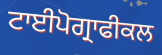
ਟਾਈਪੋਗ੍ਰਾਫੀਕਲ